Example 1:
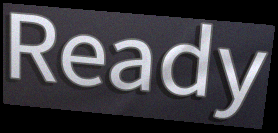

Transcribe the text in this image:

Ready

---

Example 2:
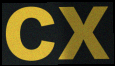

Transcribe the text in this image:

cx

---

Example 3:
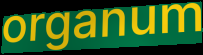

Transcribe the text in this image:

organum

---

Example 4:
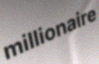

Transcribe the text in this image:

millionaire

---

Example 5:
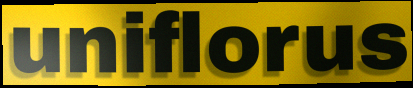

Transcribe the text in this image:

uniflorus